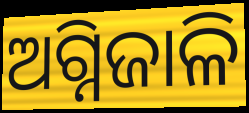
ଅଗ୍ନିଜାଳି